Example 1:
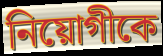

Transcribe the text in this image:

নিয়োগীকে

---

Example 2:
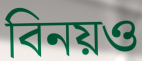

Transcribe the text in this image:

বিনয়ও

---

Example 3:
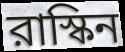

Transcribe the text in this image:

রাস্কিন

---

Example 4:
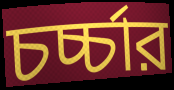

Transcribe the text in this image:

চর্চ্চার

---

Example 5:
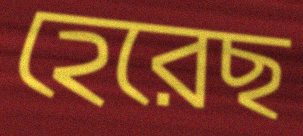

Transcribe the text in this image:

হেরেছ